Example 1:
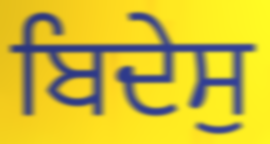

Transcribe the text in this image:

ਬਿਦੇਸੁ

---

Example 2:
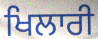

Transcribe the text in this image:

ਖਿਲਾਰੀ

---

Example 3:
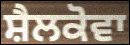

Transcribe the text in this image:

ਸ਼ੈਲਕੋਵਾ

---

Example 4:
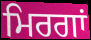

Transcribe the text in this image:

ਮਿਰਗਾਂ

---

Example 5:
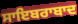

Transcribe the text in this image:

ਸਾਇਬਰਾਬਾਦ